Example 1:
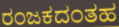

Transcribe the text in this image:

ರಂಜಕದಂತಹ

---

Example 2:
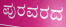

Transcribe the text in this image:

ಪುರವರದ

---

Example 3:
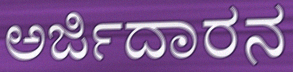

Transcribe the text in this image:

ಅರ್ಜಿದಾರನ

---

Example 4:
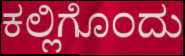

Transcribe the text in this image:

ಕಲ್ಲಿಗೊಂದು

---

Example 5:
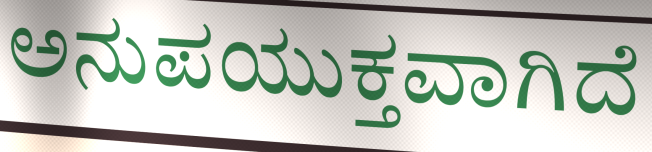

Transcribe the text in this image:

ಅನುಪಯುಕ್ತವಾಗಿದೆ